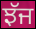
ਝੱਜ